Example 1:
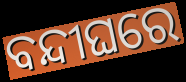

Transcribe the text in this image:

ବନ୍ଦୀଘରେ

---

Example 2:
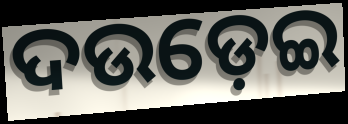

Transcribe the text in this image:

ଦଉଡ଼େଇ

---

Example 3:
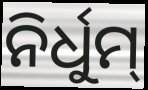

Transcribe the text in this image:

ନିର୍ଧୁମ୍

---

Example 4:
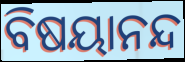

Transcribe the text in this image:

ବିଷୟାନନ୍ଦ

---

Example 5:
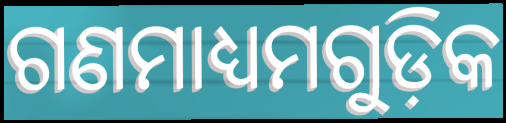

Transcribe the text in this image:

ଗଣମାଧ୍ୟମଗୁଡ଼ିକ